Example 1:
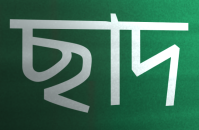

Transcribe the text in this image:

ছাদ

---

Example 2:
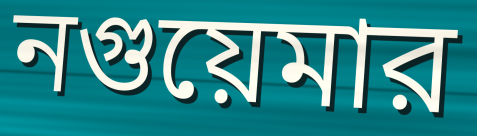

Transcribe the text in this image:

নগুয়েমার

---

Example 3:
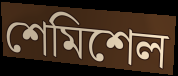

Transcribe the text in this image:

শেমিশেল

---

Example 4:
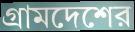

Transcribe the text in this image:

গ্রামদেশের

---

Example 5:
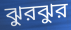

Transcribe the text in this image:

ঝুরঝুর